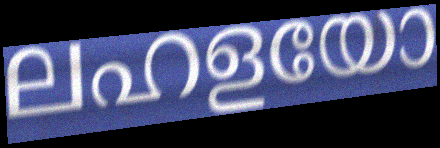
ലഹളയോ